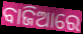
ବାଜିଆରେ